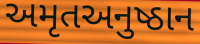
અમૃતઅનુષ્ઠાન